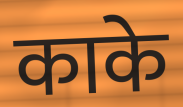
काके